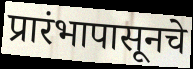
प्रारंभापासूनचे